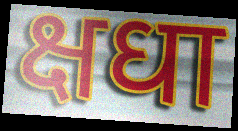
क्षधा